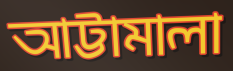
আট্টামালা